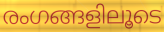
രംഗങ്ങളിലൂടെ